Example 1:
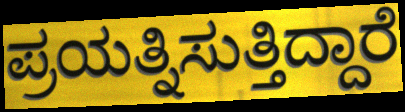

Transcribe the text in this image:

ಪ್ರಯತ್ನಿಸುತ್ತಿದ್ದಾರೆ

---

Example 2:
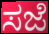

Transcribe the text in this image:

ಸಜೆ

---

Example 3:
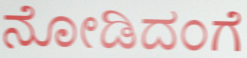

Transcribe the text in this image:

ನೋಡಿದಂಗೆ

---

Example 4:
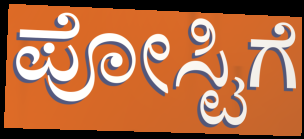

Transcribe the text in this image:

ಪೋಸ್ಟಿಗೆ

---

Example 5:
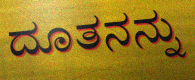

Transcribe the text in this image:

ದೂತನನ್ನು